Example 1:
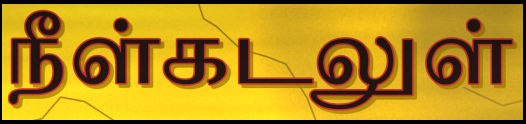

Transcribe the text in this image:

நீள்கடலுள்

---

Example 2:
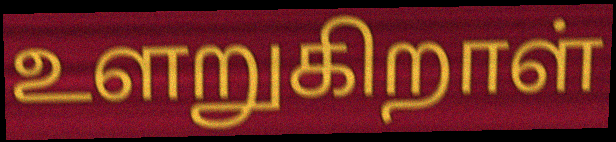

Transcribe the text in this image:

உளறுகிறாள்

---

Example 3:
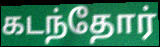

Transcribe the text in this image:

கடந்தோர்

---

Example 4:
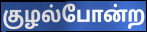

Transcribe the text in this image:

குழல்போன்ற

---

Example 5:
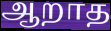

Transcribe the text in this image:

ஆறாத